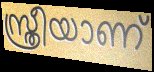
സ്ത്രീയാണ്